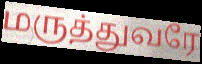
மருத்துவரே